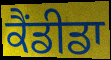
ਕੈਂਡੀਡਾ